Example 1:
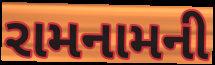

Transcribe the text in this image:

રામનામની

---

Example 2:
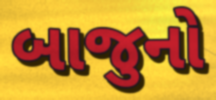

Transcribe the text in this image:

બાજુનો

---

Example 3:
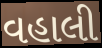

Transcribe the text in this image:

વહાલી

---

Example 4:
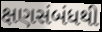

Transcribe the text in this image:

ક્ષણસંબંધથી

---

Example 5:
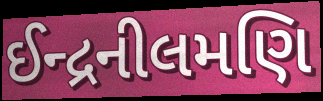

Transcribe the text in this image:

ઈન્દ્રનીલમણિ